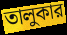
তালুকার